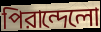
পিরান্দেলো